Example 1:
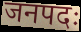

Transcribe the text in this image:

जनपदः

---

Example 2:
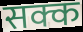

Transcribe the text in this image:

सक्क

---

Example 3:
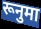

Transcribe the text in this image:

रूनुमा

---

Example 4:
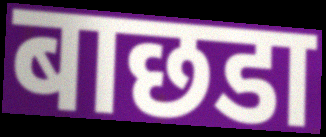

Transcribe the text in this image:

बाछडा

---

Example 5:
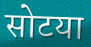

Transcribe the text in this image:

सोटया